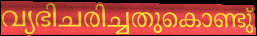
വ്യഭിചരിച്ചതുകൊണ്ടു്